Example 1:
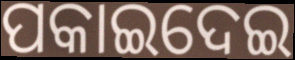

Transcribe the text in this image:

ପକାଇଦେଇ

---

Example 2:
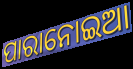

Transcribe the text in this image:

ପାରାନୋଇଆ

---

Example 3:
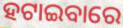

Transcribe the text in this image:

ହଟାଇବାରେ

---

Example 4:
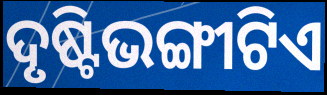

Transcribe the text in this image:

ଦୃଷ୍ଟିଭଙ୍ଗୀଟିଏ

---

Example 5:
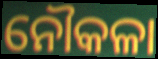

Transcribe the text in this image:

ନୌକଳା